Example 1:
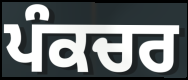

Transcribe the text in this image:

ਪੰਕਚਰ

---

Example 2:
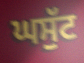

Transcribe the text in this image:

ਘਸੁੱਟ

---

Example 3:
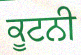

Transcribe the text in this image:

ਕੂਟਨੀ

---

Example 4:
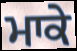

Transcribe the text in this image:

ਮਾਕੇ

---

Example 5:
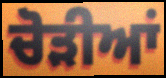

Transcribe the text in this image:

ਚੋੜੀਆਂ